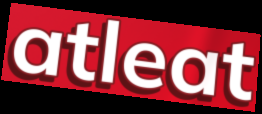
atleat